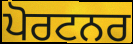
ਪੋਰਟਨਰ